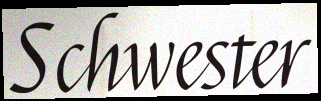
Schwester